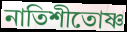
নাতিশীতোষ্ণ